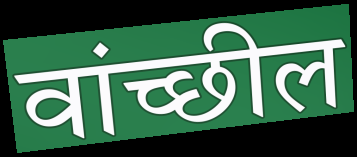
वांच्छील